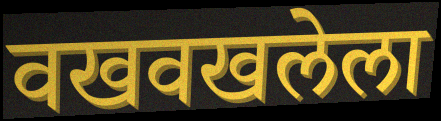
वखवखलेला